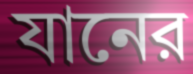
যানের